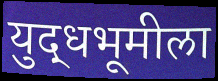
युद्धभूमीला